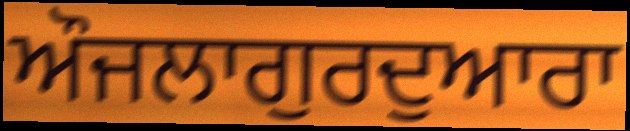
ਔਜਲਾਗੁਰਦੁਆਰਾ